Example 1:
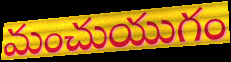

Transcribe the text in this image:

మంచుయుగం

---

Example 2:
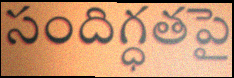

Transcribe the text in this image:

సందిగ్ధతపై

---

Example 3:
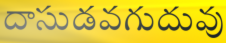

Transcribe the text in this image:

దాసుడవగుదువు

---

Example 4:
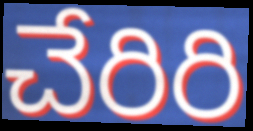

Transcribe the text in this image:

చేరిరి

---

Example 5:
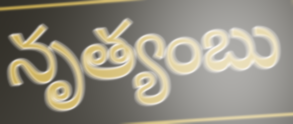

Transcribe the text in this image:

నృత్యంబు